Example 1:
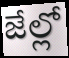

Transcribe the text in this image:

జేల్లో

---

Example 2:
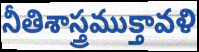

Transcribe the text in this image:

నీతిశాస్త్రముక్తావళి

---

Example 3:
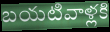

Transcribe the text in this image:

బయటివాళ్లకి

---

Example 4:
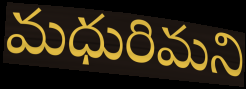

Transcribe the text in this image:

మధురిమని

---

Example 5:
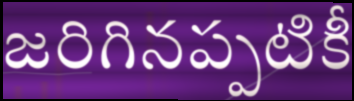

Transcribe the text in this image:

జరిగినప్పటికీ